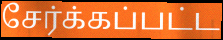
சேர்க்கப்பட்ட